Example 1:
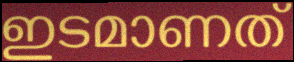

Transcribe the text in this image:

ഇടമാണത്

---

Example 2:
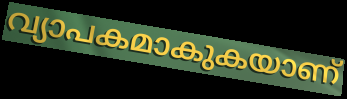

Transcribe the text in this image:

വ്യാപകമാകുകയാണ്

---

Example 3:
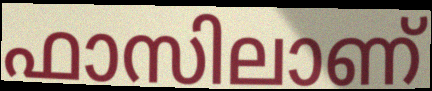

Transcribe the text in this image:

ഫാസിലാണ്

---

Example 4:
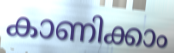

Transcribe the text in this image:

കാണിക്കാം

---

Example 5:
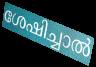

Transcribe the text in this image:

ശേഷിച്ചാൽ